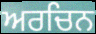
ਅਰਚਿਨ